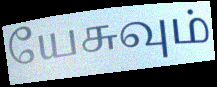
யேசுவும்